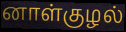
னாள்குழல்